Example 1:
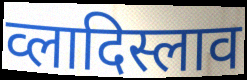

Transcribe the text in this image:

व्लादिस्लाव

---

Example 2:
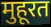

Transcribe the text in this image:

मुहूरत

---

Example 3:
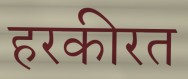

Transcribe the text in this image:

हरकीरत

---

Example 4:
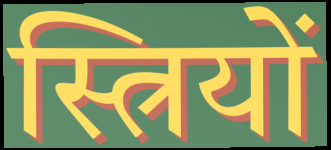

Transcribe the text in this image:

स्त्रियों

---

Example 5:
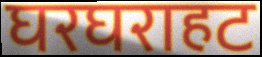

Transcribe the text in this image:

घरघराहट